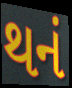
થનં